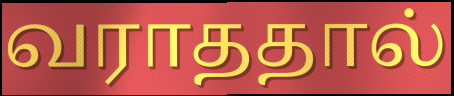
வராததால்